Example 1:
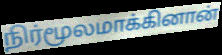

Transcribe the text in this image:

நிர்மூலமாக்கினான்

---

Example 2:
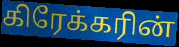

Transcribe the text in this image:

கிரேக்கரின்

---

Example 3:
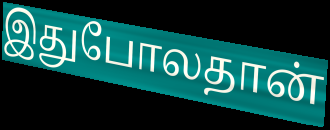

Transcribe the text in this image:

இதுபோலதான்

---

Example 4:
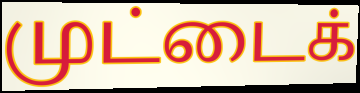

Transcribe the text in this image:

முட்டைக்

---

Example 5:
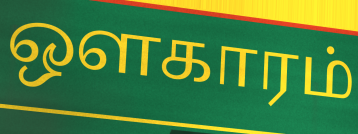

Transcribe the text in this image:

ஔகாரம்